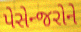
પેસેન્જરોને